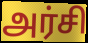
அர்சி